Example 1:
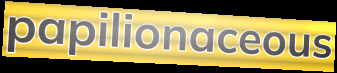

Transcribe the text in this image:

papilionaceous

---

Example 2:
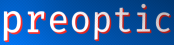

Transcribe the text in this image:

preoptic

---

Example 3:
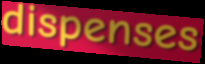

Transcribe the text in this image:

dispenses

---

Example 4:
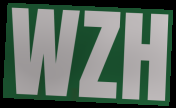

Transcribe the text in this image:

WZH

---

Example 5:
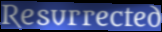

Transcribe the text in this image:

Resurrected